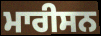
ਮਾਰੀਸਨ